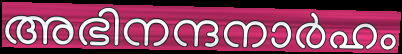
അഭിനന്ദനാർഹം